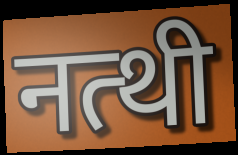
नत्‍थी